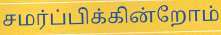
சமர்ப்பிக்கின்றோம்